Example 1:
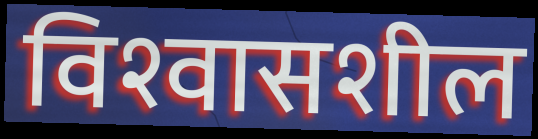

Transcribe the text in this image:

विश्वासशील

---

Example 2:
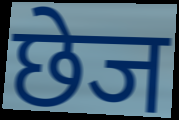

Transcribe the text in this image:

छेज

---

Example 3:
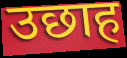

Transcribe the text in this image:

उछाह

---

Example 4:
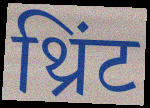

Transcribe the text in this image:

थ्रिंट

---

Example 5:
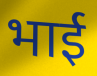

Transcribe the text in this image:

भार्ई